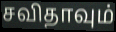
சவிதாவும்